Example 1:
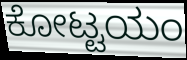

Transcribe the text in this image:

ಕೋಟ್ಟಯಂ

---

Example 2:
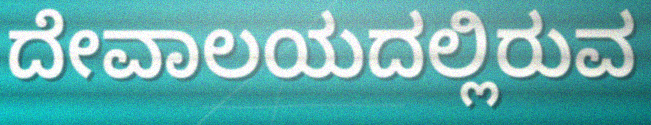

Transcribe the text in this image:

ದೇವಾಲಯದಲ್ಲಿರುವ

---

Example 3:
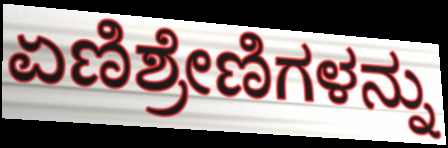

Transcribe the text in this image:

ಏಣಿಶ್ರೇಣಿಗಳನ್ನು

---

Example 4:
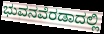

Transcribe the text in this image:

ಭುವನವೆರಡಾದಲ್ಲಿ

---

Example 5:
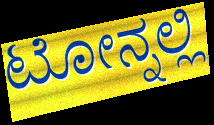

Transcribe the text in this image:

ಟೋನ್ನಲ್ಲಿ